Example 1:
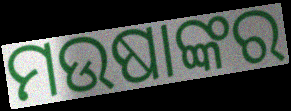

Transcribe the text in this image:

ମଉଷାଙ୍କର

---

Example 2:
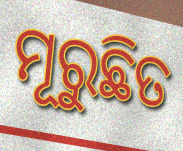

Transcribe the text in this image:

ମୂରୁଛିତ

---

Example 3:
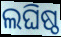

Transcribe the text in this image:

ଲଘିଷ୍ଠ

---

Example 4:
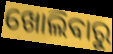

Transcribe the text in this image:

ଖୋଲିବାରୁ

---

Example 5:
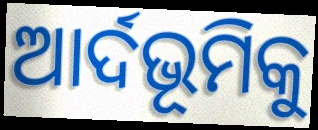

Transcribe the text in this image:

ଆର୍ଦଭୂମିକୁ